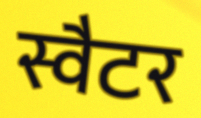
स्वैटर